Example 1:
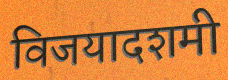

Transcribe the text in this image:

विजयादशमी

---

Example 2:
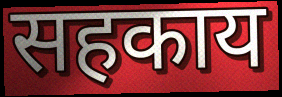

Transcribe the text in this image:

सहकाय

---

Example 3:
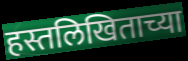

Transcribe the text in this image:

हस्तलिखिताच्या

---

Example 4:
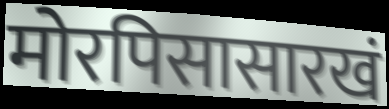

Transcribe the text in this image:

मोरपिसासारखं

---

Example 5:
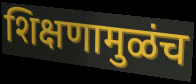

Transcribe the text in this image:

शिक्षणामुळंच